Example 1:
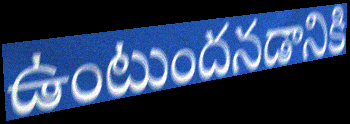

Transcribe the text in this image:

ఉంటుందనడానికి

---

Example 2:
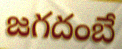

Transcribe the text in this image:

జగదంబే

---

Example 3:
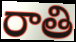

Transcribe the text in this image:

రాతి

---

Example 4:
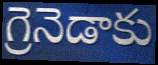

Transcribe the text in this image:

గ్రెనెడాకు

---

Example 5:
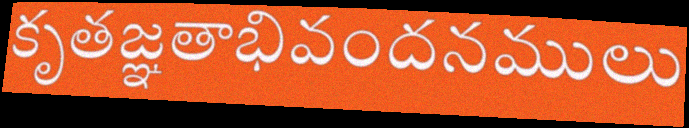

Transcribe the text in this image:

కృతజ్ఞతాభివందనములు